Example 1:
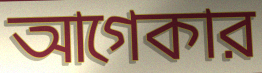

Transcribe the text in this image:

আগেকার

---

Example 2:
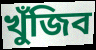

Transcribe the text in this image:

খুঁজিব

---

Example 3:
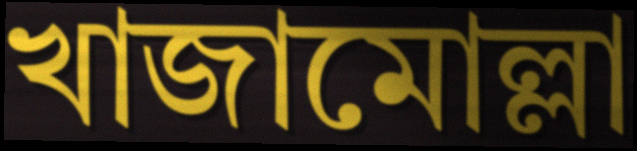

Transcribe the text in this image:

খাজামোল্লা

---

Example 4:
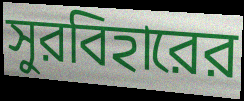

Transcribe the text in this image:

সুরবিহারের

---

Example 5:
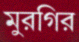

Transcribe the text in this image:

মুরগির